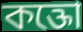
কক্তো